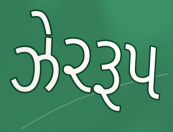
ઝેરરૂપ